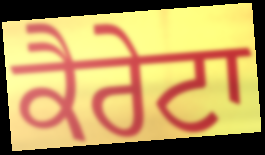
ਕੈਰੇਟਾ